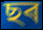
ছৰ